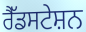
ਰੈੱਡਸਟੇਸ਼ਨ